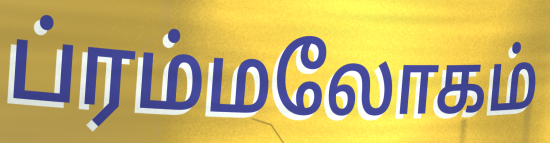
ப்ரம்மலோகம்